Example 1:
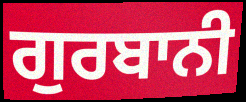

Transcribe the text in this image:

ਗੁਰਬਾਨੀ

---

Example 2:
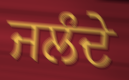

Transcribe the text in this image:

ਜਲੰਦੇ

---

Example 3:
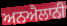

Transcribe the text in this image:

ਅਨਐਲਾਨੀ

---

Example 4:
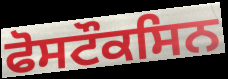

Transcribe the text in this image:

ਫੋਸਟੌਕਸਿਨ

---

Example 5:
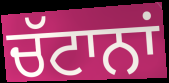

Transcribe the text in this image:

ਚੱਟਾਨਾਂ